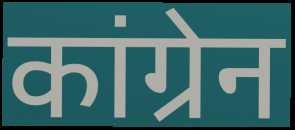
कांग्रेन